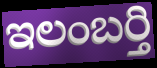
ఇలంబర్తి